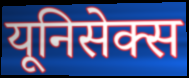
यूनिसेक्स